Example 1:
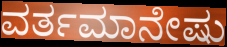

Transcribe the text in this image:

ವರ್ತಮಾನೇಷು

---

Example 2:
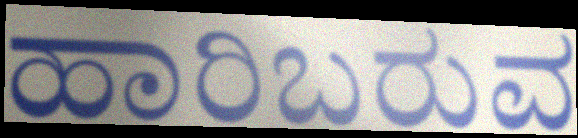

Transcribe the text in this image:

ಹಾರಿಬರುವ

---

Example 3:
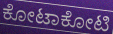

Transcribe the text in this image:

ಕೋಟಾಕೋಟಿ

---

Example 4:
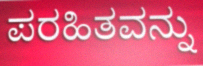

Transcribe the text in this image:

ಪರಹಿತವನ್ನು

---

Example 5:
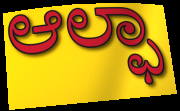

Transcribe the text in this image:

ಆಲ್ಫಾ